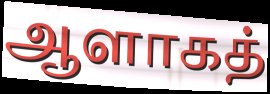
ஆளாகத்